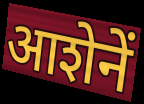
आशेनें